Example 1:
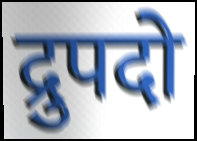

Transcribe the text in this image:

द्रुपदो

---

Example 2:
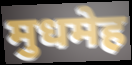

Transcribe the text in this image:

मुधमेह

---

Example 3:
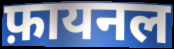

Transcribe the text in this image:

फ़ायनल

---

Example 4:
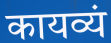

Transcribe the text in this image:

कायव्यं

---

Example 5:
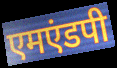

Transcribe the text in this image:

एमएंडपी